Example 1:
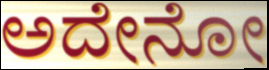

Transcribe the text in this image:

ಅದೇನೋ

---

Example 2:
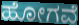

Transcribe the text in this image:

ಹೋಗವೆ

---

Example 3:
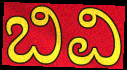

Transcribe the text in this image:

ಬಿವಿ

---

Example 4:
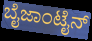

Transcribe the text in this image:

ಬೈಜಾಂಟೈನ್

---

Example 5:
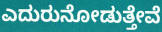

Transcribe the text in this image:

ಎದುರುನೋಡುತ್ತೇವೆ